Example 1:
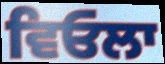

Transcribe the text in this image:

ਵਿਓਲਾ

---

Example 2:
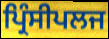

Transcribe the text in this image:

ਪ੍ਰਿੰਸੀਪਲਜ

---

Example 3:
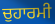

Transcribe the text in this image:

ਚੁਹਾਰਮੀ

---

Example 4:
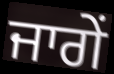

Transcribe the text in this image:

ਜਾਗੇਂ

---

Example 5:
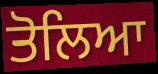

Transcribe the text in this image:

ਤੋਲਿਆ